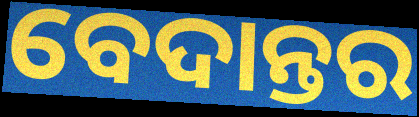
ବେଦାନ୍ତର